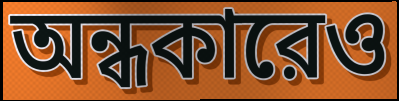
অন্ধকারেও